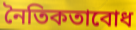
নৈতিকতাবোধ